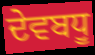
ਦੇਵਬਧੂ